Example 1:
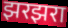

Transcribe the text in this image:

झरझरा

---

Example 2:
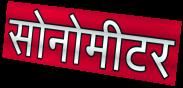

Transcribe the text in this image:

सोनोमीटर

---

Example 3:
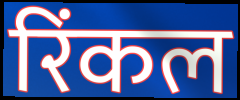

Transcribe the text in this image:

रिंकल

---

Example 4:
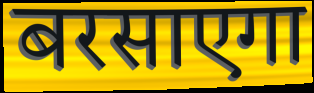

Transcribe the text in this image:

बरसाएगा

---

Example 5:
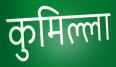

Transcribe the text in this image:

कुमिल्ला